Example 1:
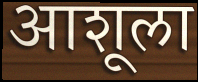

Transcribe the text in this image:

आशूला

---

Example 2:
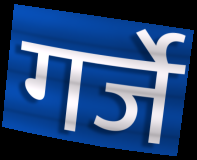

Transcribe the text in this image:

गर्जे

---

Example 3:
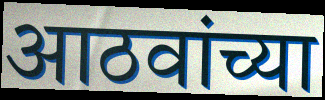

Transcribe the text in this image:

आठवांच्या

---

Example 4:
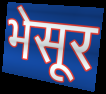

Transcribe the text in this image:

भेसूर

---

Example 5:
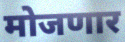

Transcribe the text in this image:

मोजणार